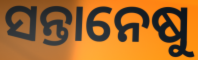
ସନ୍ତାନେଷୁ